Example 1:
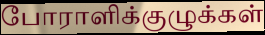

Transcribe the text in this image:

போராளிக்குழுக்கள்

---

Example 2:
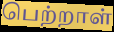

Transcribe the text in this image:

பெற்றாள்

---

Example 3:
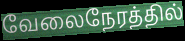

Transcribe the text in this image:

வேலைநேரத்தில்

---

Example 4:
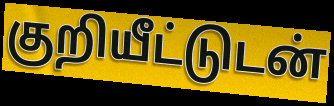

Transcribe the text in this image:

குறியீட்டுடன்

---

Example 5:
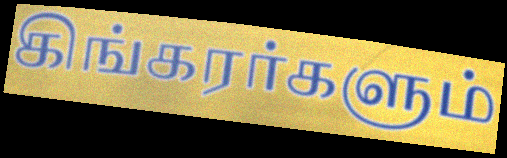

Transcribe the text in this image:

கிங்கரர்களும்